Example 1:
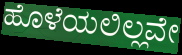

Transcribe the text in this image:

ಹೊಳೆಯಲಿಲ್ಲವೇ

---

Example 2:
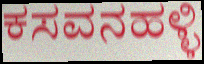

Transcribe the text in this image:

ಕಸವನಹಳ್ಳಿ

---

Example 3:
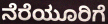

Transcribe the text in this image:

ನೆರೆಯೂರಿಗೆ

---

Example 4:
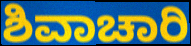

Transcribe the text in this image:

ಶಿವಾಚಾರಿ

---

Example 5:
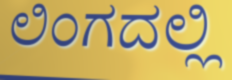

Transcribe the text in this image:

ಲಿಂಗದಲ್ಲಿ